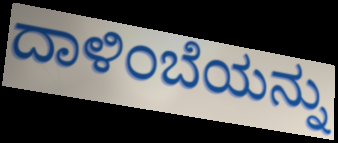
ದಾಳಿಂಬೆಯನ್ನು